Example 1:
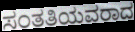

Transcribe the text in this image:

ಸಂತತಿಯವರಾದ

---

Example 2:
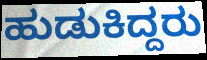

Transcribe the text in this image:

ಹುಡುಕಿದ್ದರು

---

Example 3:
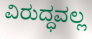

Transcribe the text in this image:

ವಿರುದ್ಧವಲ್ಲ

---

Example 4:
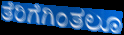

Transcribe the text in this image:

ತೆರಿಗೆಗಿಂತಲೂ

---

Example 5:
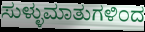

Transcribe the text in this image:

ಸುಳ್ಳುಮಾತುಗಳಿಂದ